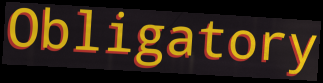
Obligatory